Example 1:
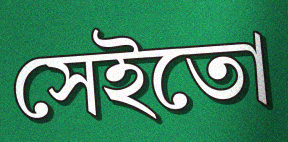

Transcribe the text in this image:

সেইতো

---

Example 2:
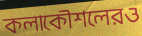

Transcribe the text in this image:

কলাকৌশলেরও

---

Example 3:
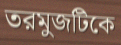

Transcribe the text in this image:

তরমুজটিকে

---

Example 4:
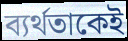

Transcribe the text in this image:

ব্যর্থতাকেই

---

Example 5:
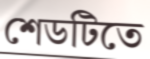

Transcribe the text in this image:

শেডটিতে